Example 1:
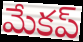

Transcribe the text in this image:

మేకప్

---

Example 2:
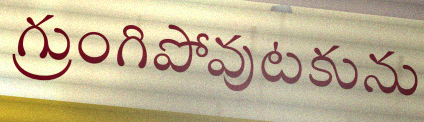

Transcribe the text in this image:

గ్రుంగిపోవుటకును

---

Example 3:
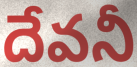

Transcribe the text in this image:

దేవనీ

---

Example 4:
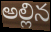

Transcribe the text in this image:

అల్లిన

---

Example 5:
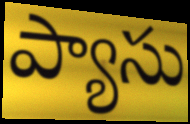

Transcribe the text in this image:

ప్యాసు